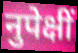
नुपेक्षीं